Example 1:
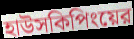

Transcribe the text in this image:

হাউসকিপিংয়ের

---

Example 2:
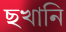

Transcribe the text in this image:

ছখানি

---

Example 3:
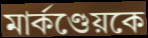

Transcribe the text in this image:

মার্কণ্ডেয়কে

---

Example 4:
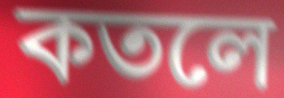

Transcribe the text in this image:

কতলে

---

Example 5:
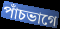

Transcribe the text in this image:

পাঁচভাগে